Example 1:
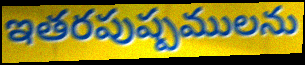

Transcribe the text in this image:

ఇతరపుష్పములను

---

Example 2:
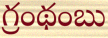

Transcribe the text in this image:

గ్రంథంబు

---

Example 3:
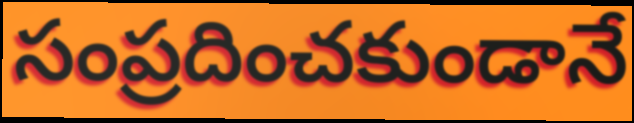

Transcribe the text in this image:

సంప్రదించకుండానే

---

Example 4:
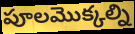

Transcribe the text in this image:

పూలమొక్కల్ని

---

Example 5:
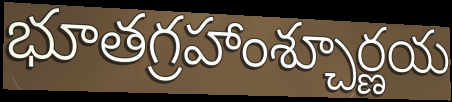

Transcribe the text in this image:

భూతగ్రహాంశ్చూర్ణయ